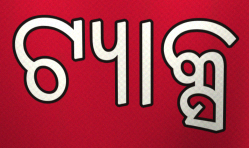
ଟ୍ୟାକ୍ସ